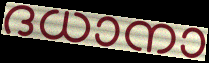
ദധാനാ